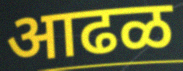
आढळ